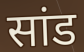
सांड